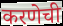
करणेची